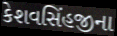
કેશવસિંહજીના